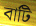
বাটি